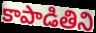
కాపాడితిని